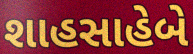
શાહસાહેબે